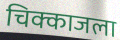
चिक्काजला